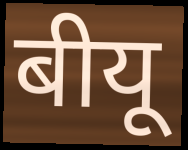
बीयू